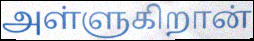
அள்ளுகிறான்